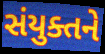
સંયુક્તને